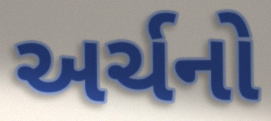
અર્ચનો